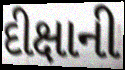
દીક્ષાની